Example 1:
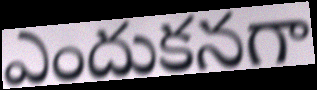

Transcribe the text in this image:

ఎందుకనగా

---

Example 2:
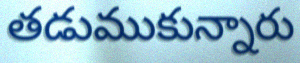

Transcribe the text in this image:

తడుముకున్నారు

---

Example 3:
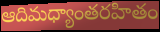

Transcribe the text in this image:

ఆదిమధ్యాంతరహితం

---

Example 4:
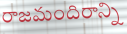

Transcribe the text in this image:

రాజమందిరాన్ని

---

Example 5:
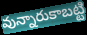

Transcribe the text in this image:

వున్నారుకాబట్టి